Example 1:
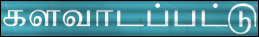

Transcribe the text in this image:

களவாடப்பட்டு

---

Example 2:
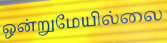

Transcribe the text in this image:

ஒன்றுமேயில்லை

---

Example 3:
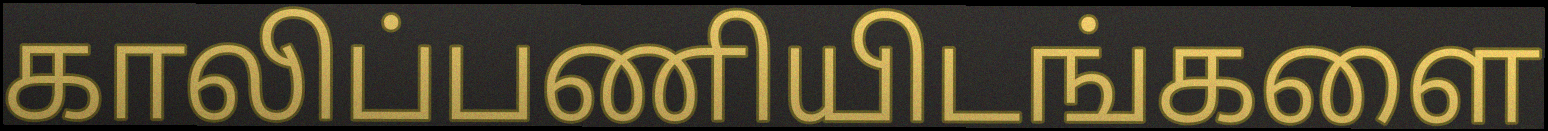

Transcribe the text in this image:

காலிப்பணியிடங்களை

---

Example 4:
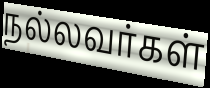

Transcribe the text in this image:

நல்லவர்கள்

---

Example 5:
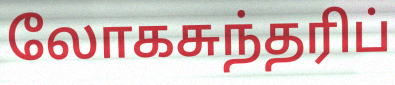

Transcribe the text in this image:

லோகசுந்தரிப்